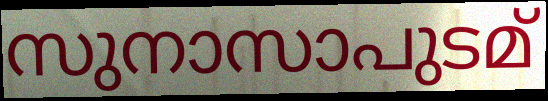
സുനാസാപുടമ്